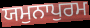
ਯਮੁਨਾਪੁਰਮ